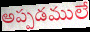
అప్పడములే